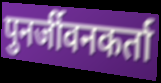
पुनर्जीवनकर्ता